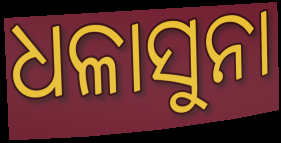
ଧଳାସୁନା